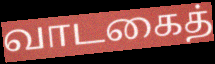
வாடகைத்